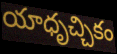
యాధృచ్చికం